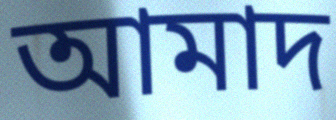
আমাদ